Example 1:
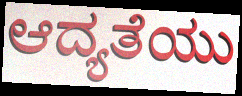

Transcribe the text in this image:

ಆದ್ಯತೆಯು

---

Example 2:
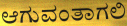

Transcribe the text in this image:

ಆಗುವಂತಾಗಲಿ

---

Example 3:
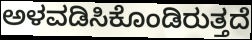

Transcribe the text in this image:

ಅಳವಡಿಸಿಕೊಂಡಿರುತ್ತದೆ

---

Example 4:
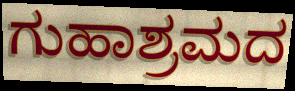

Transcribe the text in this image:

ಗುಹಾಶ್ರಮದ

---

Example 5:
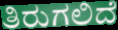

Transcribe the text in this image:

ತಿರುಗಲಿದೆ